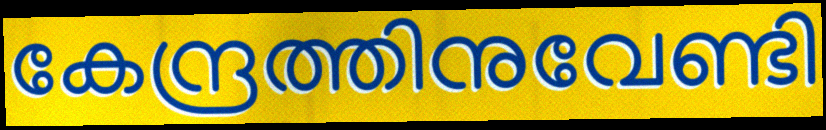
കേന്ദ്രത്തിനുവേണ്ടി